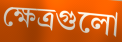
ক্ষেত্রগুলো